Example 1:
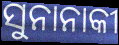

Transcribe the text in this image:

ସୁନାନାକୀ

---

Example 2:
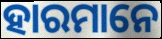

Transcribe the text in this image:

ହାରମାନେ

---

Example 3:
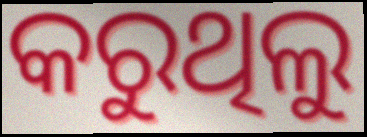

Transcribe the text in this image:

କରୁଥିଲୁ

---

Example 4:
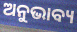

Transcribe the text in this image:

ଅନୁଭାବ୍ୟ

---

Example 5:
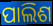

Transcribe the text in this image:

ପାଲିଶ